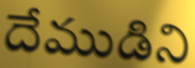
దేముడిని